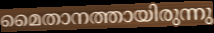
മൈതാനത്തായിരുന്നു